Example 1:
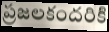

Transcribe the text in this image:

ప్రజలకందరికి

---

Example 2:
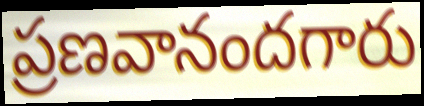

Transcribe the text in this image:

ప్రణవానందగారు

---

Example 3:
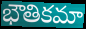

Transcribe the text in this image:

భౌతికమా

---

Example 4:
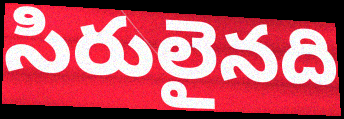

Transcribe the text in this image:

సిరులైనది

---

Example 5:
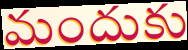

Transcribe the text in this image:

మందుకు